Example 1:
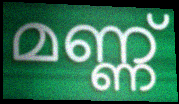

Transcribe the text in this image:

മണ്ണ്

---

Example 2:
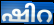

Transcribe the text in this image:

ഷിറ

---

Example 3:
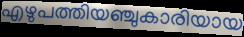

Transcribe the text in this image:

എഴുപത്തിയഞ്ചുകാരിയായ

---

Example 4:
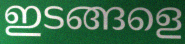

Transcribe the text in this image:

ഇടങ്ങളെ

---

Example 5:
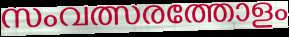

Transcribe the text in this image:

സംവത്സരത്തോളം